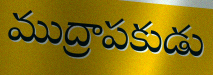
ముద్రాపకుడు